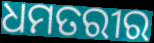
ଧମତରୀର